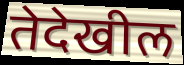
तेदेखील